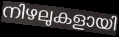
നിഴലുകളായി